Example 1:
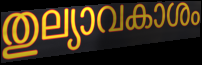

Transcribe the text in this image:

തുല്യാവകാശം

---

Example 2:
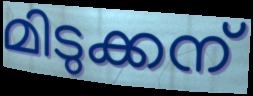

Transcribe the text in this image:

മിടുക്കന്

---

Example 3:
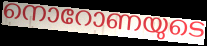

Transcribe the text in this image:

നൊറോണയുടെ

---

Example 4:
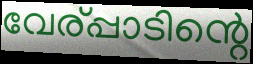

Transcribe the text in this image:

വേര്പ്പാടിന്റെ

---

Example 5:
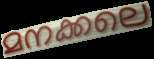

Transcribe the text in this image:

മനക്കലെ